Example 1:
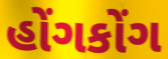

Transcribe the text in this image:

હોંગકોંગ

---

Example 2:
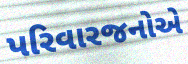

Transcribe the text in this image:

પરિવારજનોએ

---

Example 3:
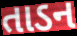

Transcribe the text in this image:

તાડન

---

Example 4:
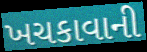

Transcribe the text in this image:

ખચકાવાની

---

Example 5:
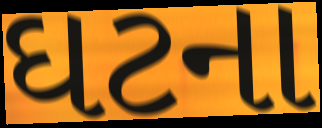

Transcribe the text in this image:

ઘટના